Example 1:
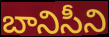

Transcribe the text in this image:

బానిసీని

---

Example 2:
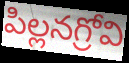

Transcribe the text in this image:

పిల్లనగ్రోవి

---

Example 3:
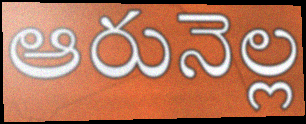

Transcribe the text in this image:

ఆరునెల్ల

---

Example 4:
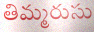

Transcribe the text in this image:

తిమ్మరుసు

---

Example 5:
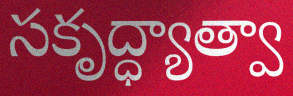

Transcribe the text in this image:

సకృద్ధ్యాత్వా